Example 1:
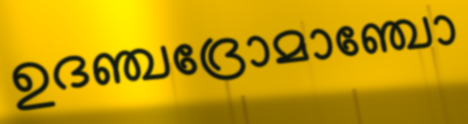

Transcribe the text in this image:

ഉദഞ്ചദ്രോമാഞ്ചോ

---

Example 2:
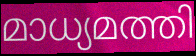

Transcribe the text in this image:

മാധ്യമത്തി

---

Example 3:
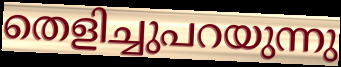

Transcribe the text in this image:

തെളിച്ചുപറയുന്നു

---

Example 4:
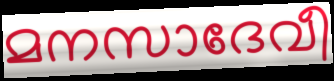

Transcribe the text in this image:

മനസാദേവീ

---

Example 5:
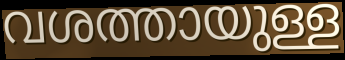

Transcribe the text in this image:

വശത്തായുള്ള